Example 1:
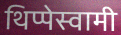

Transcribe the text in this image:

थिप्पेस्वामी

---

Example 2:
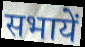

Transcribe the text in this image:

सभायें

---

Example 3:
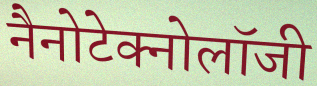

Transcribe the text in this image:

नैनोटेक्नोलॉजी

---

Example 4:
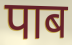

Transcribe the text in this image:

पाब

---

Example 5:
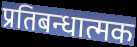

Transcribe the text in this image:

प्रतिबन्धात्मक